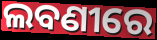
ଲବଣୀରେ